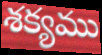
శక్యము